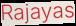
Rajayas